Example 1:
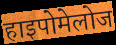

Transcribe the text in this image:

हाइपोमेलोज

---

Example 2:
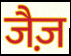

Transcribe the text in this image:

जैज़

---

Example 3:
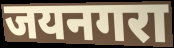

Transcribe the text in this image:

जयनगरा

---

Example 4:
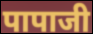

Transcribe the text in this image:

पापाजी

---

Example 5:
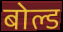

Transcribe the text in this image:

बोल्ड